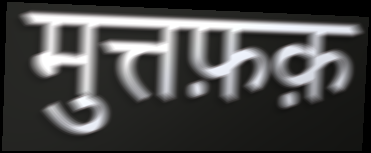
मुत्तफ़क़